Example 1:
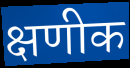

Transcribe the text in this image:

क्षणीक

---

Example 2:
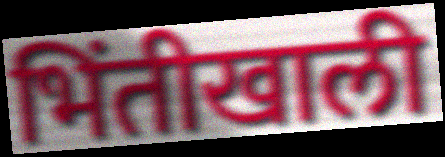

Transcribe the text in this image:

भिंतीखाली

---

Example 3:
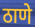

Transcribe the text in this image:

ठाणे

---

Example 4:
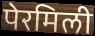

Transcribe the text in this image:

पेरमिली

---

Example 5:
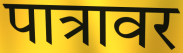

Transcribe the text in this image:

पात्रावर